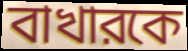
বাখারকে